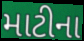
માટીના